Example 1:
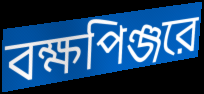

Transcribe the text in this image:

বক্ষপিঞ্জরে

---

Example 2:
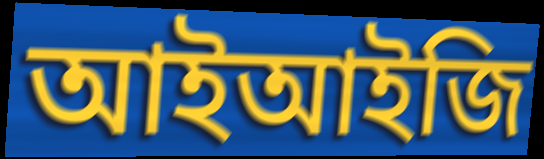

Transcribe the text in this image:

আইআইজি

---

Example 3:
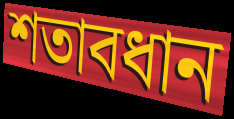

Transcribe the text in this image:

শতাবধান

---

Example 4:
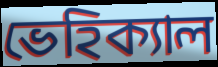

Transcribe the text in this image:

ভেহিক্যাল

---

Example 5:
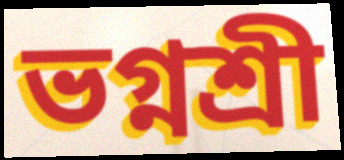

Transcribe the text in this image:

ভগ্নশ্রী